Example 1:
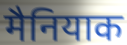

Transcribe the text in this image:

मैनियाक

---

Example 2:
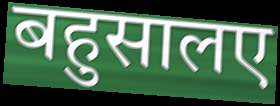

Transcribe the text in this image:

बहुसालए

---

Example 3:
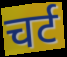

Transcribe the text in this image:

चर्ट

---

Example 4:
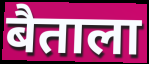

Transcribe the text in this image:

बैताला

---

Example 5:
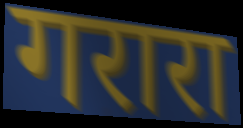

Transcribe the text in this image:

गरारा